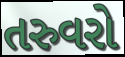
તરુવરો